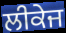
ਲੀਕੇਜ